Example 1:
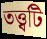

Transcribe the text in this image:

তত্ত্বটি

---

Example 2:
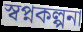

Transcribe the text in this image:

স্বপ্নকল্পনা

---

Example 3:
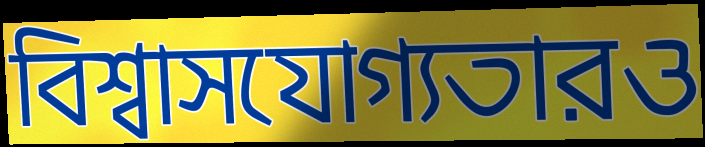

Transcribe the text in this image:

বিশ্বাসযোগ্যতারও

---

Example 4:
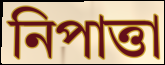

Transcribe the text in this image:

নিপাত্তা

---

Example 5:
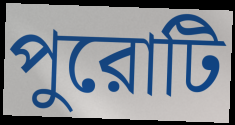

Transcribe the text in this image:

পুরোটি